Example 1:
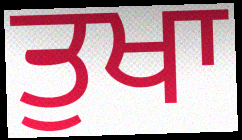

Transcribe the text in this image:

ਤੁਖਾ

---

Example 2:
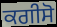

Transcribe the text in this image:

ਕਗੀਸੋ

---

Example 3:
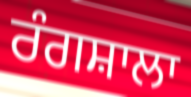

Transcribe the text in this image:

ਰੰਗਸ਼ਾਲਾ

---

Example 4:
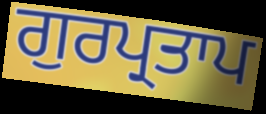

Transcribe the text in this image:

ਗੁਰਪ੍ਰਤਾਪ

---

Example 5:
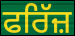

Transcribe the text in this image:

ਫਰਿੱਜ਼